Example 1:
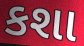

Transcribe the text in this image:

કશા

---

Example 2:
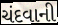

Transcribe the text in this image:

ચંદવાની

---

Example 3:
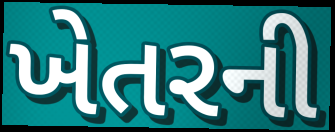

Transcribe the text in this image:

ખેતરની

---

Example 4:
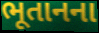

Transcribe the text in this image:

ભૂતાનના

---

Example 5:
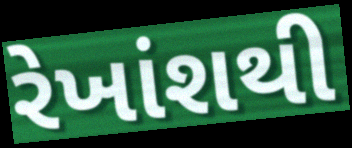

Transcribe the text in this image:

રેખાંશથી